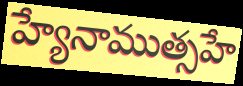
హ్యేనాముత్సహే